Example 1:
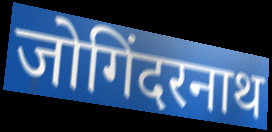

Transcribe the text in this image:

जोगिंदरनाथ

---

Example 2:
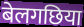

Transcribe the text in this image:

बेलगछिया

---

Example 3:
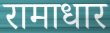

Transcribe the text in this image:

रामाधार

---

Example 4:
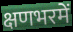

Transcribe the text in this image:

क्षणभरमें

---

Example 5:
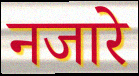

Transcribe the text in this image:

नजारे